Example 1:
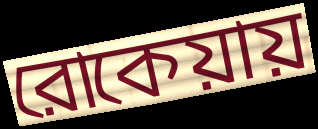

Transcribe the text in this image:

রোকেয়ায়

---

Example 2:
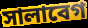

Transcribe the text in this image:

সালাবেগ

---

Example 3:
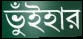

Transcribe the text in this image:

ভুঁইহার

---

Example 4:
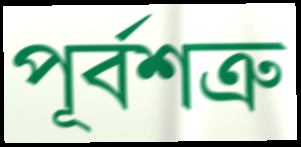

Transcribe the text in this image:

পূর্বশত্রু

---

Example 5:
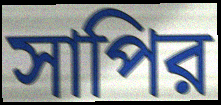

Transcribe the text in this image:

সাপির